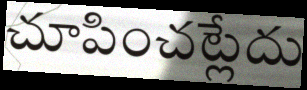
చూపించట్లేదు